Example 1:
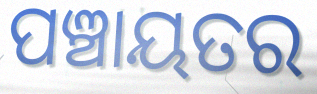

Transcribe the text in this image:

ପଞ୍ଚାୟତର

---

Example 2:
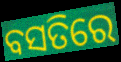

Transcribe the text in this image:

ବସତିରେ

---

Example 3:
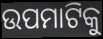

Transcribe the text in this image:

ଉପମାଟିକୁ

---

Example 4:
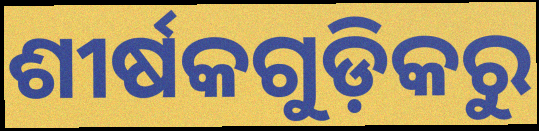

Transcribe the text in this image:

ଶୀର୍ଷକଗୁଡ଼ିକରୁ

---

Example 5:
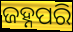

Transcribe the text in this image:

ଜହ୍ନପରି